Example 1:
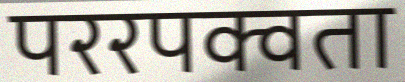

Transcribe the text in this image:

पररपक्वता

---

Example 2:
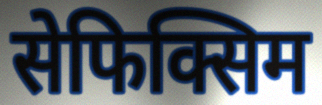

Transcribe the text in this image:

सेफिक्सिम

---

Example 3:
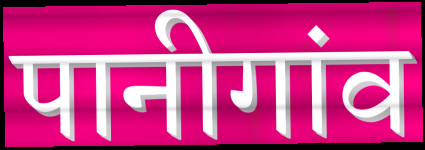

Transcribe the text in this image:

पानीगांव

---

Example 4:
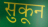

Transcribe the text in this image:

सुकून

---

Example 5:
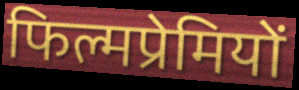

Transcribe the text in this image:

फिल्मप्रेमियों